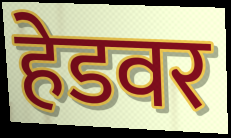
हेडवर